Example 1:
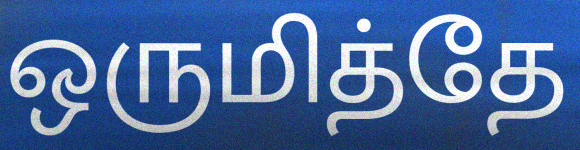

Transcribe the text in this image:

ஒருமித்தே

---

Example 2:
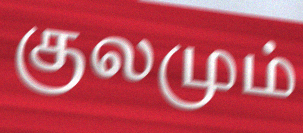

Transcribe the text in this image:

குலமும்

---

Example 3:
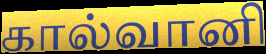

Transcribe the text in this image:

கால்வானி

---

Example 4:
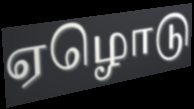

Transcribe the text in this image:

ஏழொடு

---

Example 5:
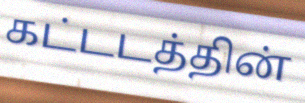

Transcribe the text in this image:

கட்டடத்தின்